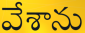
వేశాను